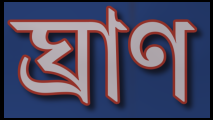
ঘ্রাণ